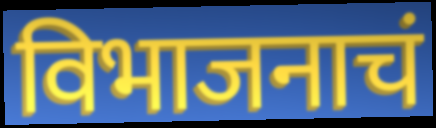
विभाजनाचं